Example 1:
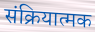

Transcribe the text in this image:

संक्रियात्मक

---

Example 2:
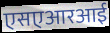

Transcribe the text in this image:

एसएआरआई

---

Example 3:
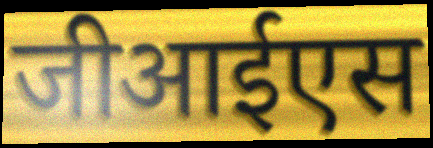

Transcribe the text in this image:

जीआईएस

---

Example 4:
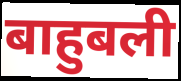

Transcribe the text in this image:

बाहुबली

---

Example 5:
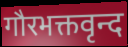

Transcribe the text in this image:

गौरभक्तवृन्द